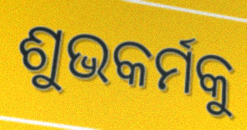
ଶୁଭକର୍ମକୁ